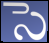
సె